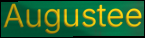
Augustee